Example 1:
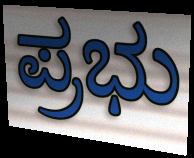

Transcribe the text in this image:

ಪ್ರಭು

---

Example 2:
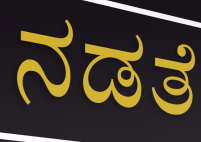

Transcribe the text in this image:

ನಡತೆ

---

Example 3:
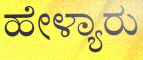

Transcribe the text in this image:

ಹೇಳ್ಯಾರು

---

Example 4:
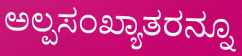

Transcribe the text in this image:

ಅಲ್ಪಸಂಖ್ಯಾತರನ್ನೂ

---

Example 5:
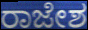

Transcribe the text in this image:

ರಾಜೇಶ